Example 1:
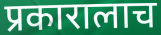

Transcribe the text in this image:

प्रकारालाच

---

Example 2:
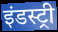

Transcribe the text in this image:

इंडस्ट्री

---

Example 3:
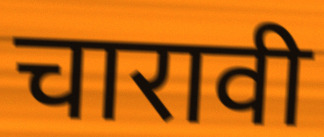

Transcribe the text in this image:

चारावी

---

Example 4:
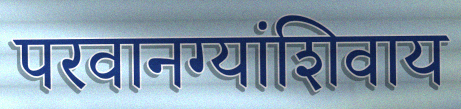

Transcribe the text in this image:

परवानग्यांशिवाय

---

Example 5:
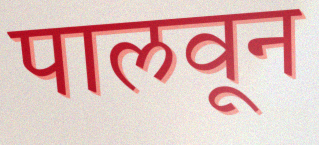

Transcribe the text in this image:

पालवून